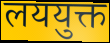
लययुक्त